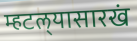
म्हटल्यासारखं